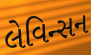
લેવિન્સન